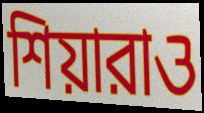
শিয়ারাও